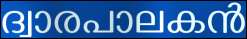
ദ്വാരപാലകൻ